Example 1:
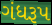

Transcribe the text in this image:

ગંધરૂપ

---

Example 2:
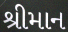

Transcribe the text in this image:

શ્રીમાન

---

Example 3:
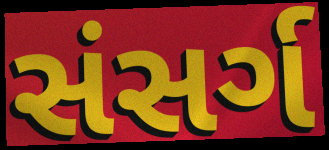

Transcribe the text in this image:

સંસર્ગ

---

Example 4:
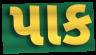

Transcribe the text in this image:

પાક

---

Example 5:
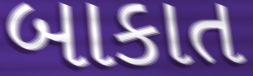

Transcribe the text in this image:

બાકાત